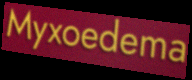
Myxoedema